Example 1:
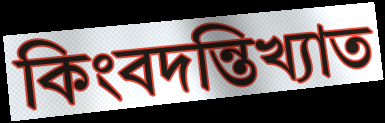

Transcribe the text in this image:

কিংবদন্তিখ্যাত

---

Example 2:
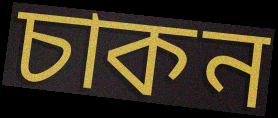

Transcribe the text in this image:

চাকন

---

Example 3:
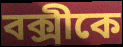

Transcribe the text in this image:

বক্সীকে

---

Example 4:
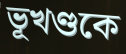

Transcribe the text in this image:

ভূখণ্ডকে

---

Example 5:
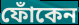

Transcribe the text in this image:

ফোঁকেন